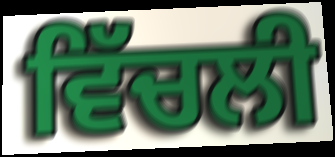
ਵਿੱਚਲੀ